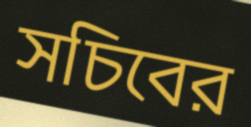
সচিবের